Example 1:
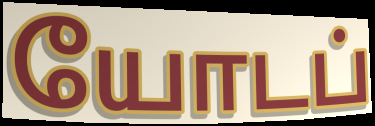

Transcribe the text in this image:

யோடப்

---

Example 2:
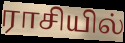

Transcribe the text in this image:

ராசியில்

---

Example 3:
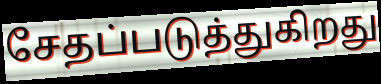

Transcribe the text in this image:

சேதப்படுத்துகிறது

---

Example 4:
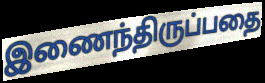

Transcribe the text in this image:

இணைந்திருப்பதை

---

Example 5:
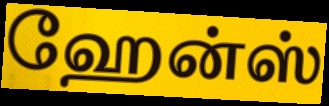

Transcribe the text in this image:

ஹேன்ஸ்